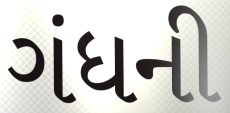
ગંધની